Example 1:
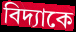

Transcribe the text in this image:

বিদ্যাকে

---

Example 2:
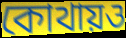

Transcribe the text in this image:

কোথায়ও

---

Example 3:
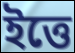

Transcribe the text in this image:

ইত্তে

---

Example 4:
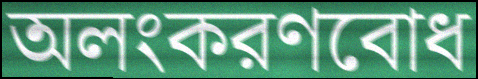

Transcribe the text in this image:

অলংকরণবোধ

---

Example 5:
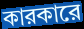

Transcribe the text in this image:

কারকারে